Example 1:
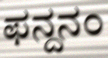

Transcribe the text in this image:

ಫನ್ದನಂ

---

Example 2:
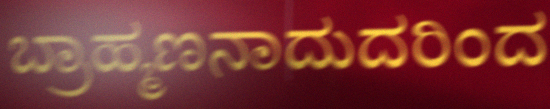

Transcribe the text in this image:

ಬ್ರಾಹ್ಮಣನಾದುದರಿಂದ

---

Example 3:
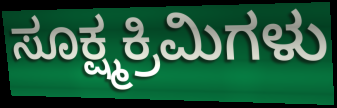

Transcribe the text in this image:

ಸೂಕ್ಷ್ಮಕ್ರಿಮಿಗಳು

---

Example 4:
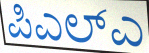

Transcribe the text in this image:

ಪಿಎಲ್ಎ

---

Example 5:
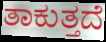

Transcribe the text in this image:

ತಾಕುತ್ತದೆ